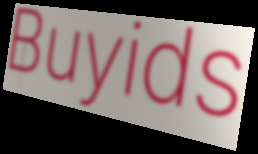
Buyids